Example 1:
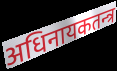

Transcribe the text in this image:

अधिनायकतन्त्र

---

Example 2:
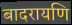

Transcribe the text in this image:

बादरायणि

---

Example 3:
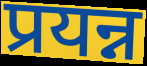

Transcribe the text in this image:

प्रयन्न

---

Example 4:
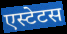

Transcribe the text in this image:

एस्टेटस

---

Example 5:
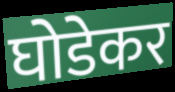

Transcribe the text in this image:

घोडेकर